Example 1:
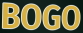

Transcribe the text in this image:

BOGO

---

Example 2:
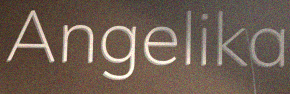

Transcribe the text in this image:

Angelika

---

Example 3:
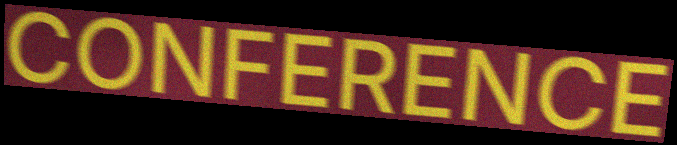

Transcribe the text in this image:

CONFERENCE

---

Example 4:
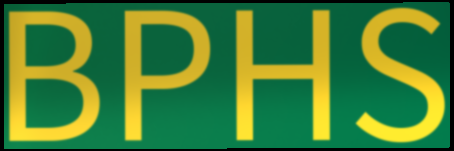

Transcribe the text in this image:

BPHS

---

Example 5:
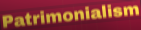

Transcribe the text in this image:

Patrimonialism